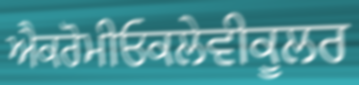
ਐਕਰੋਮੀਓਕਲੇਵੀਕੂਲਰ